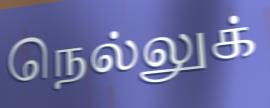
நெல்லுக்